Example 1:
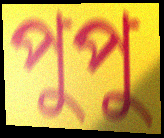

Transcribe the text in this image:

পুপু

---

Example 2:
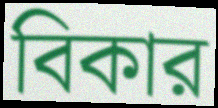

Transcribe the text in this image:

বিকার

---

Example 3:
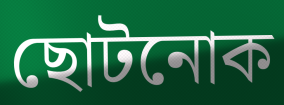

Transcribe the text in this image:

ছোটনোক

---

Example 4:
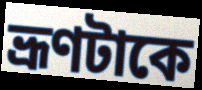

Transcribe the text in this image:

ভ্রূণটাকে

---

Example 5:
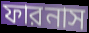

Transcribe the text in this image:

ফারনাস